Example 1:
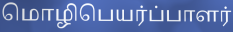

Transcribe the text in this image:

மொழிபெயர்ப்பாளர்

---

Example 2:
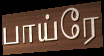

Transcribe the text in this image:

பாய்ரே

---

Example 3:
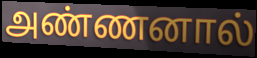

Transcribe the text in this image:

அண்ணனால்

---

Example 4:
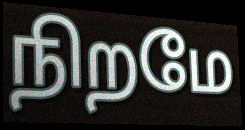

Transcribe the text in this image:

நிறமே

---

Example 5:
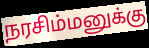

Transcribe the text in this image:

நரசிம்மனுக்கு